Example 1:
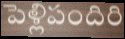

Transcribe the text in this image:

పెళ్లిపందిరి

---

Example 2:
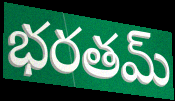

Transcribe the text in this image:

భరతమ్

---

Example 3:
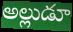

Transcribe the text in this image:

అల్లుడూ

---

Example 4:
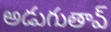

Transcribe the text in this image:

అడుగుతావ్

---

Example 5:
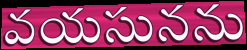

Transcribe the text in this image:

వయసునను